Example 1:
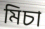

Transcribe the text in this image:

মিচা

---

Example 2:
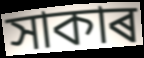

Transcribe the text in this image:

সাকাৰ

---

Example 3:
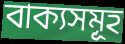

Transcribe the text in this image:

বাক্যসমূহ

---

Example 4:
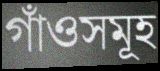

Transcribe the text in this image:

গাঁওসমূহ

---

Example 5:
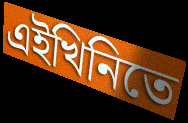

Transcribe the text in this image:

এইখিনিতে